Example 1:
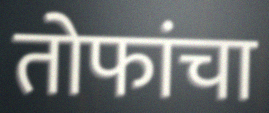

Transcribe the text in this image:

तोफांचा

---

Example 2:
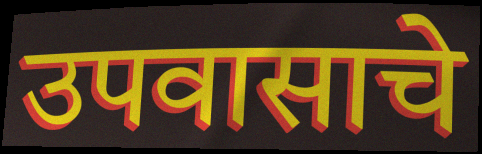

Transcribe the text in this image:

उपवासाचे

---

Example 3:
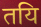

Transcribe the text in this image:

तयि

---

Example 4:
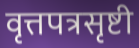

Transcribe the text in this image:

वृत्तपत्रसृष्टी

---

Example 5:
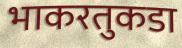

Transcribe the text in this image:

भाकरतुकडा